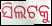
ସିଲଟକୁ